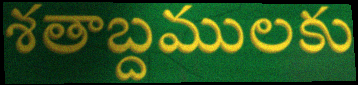
శతాబ్దములకు